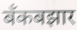
बँकबझार